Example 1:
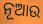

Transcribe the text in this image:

ନୂଆଉ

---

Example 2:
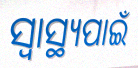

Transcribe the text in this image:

ସ୍ଵାସ୍ଥ୍ୟପାଇଁ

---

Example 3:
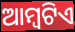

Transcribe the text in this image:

ଆମ୍ବଟିଏ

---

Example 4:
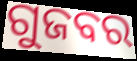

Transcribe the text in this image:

ଗୁଜବର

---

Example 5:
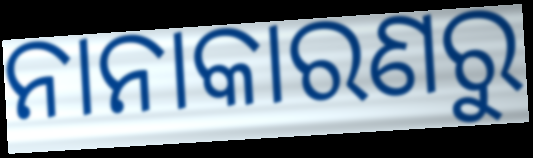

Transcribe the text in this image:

ନାନାକାରଣରୁ